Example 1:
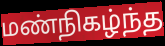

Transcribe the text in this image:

மண்நிகழ்ந்த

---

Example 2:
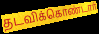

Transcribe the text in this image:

தடவிக்கொண்டார்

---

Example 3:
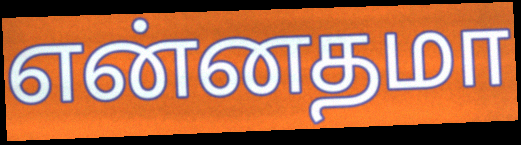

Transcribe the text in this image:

என்னதமா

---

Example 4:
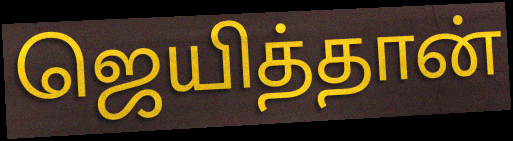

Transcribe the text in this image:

ஜெயித்தான்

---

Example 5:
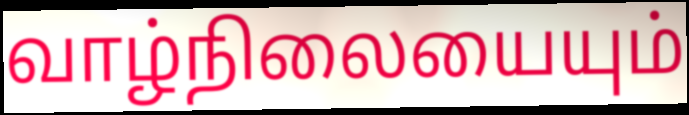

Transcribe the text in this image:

வாழ்நிலையையும்